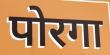
पोरगा